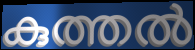
കുത്തൽ